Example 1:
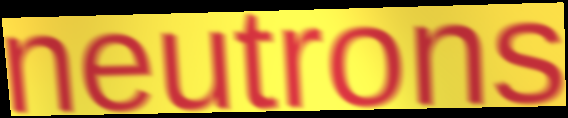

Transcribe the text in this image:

neutrons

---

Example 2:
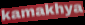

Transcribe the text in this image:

kamakhya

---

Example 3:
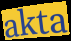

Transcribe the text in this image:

akta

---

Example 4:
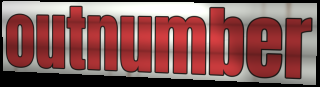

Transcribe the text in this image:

outnumber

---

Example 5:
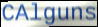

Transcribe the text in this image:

CAlguns